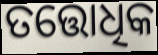
ତତ୍ତୋଧିକ